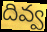
దివ్వ